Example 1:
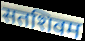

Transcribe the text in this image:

सतशिवम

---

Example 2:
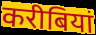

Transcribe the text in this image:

करीबियां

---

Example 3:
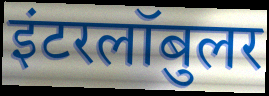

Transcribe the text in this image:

इंटरलॉबुलर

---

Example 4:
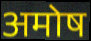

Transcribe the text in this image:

अमोष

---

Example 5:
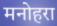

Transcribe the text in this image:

मनोहरा